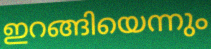
ഇറങ്ങിയെന്നും